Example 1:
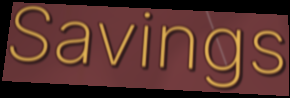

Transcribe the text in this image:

Savings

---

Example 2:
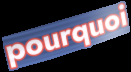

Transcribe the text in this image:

pourquoi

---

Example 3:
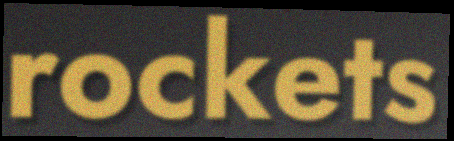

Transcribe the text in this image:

rockets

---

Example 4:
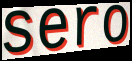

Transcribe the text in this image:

sero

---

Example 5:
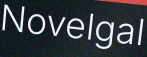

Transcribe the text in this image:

Novelgal